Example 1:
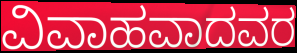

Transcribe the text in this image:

ವಿವಾಹವಾದವರ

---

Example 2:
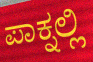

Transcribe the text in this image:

ಪಾಕ್ನಲ್ಲಿ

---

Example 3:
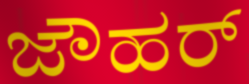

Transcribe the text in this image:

ಜೌಹರ್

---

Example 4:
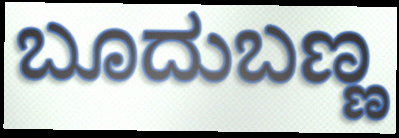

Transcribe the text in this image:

ಬೂದುಬಣ್ಣ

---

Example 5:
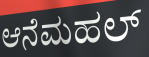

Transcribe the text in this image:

ಆನೆಮಹಲ್